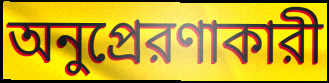
অনুপ্রেরণাকারী